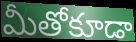
మీతోకూడా